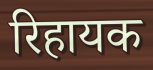
रिहायक